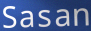
Sasan